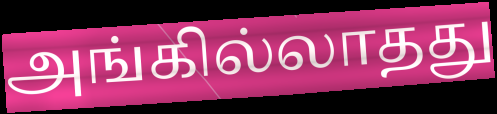
அங்கில்லாதது